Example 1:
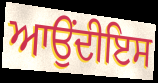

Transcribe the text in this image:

ਆਉਂਦੀਇਸ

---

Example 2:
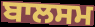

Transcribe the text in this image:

ਬਾਲਸਮ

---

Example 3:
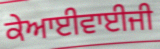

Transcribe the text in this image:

ਕੇਆਈਵਾਈਜੀ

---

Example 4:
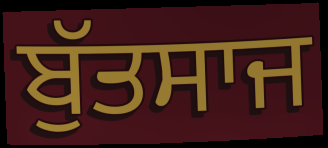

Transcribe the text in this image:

ਬੁੱਤਸਾਜ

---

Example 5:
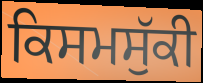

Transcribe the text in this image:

ਕਿਸਮਸੁੱਕੀ